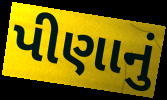
પીણાનું